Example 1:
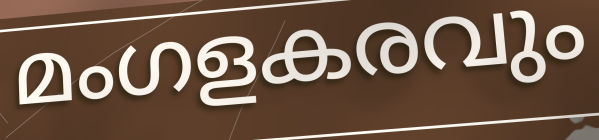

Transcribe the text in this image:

മംഗളകരവും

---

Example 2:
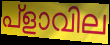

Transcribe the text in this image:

പ്ളാവില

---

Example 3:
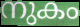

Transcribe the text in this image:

നുകം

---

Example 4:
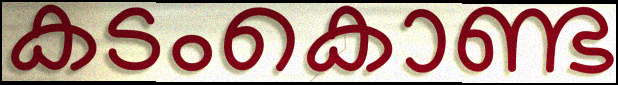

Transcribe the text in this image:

കടംകൊണ്ട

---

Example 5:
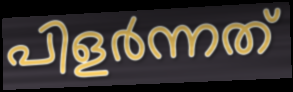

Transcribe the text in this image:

പിളർന്നത്